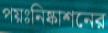
পয়ঃনিষ্কাশনের